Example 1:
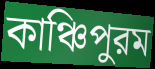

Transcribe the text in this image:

কাঞ্চিপুরম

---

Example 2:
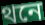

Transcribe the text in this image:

থনে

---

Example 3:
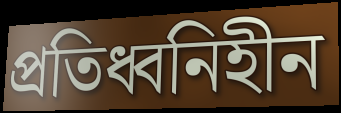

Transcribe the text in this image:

প্রতিধ্বনিহীন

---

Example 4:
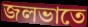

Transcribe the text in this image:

জলভাতে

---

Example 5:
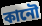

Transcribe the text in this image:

কানৌ